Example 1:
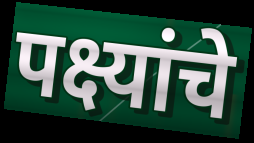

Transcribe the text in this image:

पक्ष्यांचे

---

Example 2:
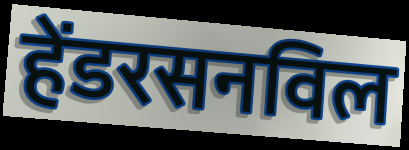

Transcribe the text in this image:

हेंडरसनविल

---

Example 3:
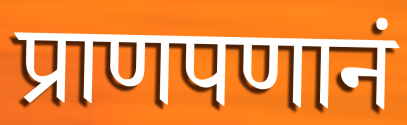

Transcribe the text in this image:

प्राणपणानं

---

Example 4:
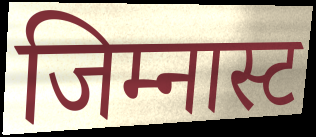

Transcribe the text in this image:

जिम्नास्ट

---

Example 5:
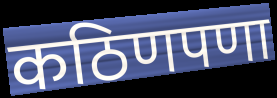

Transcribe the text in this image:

कठिणपणा